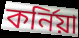
কৰ্নিয়া